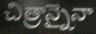
చిత్రాన్నైనా